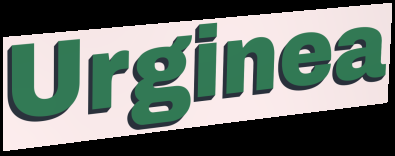
Urginea